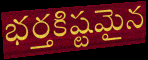
భర్తకిష్టమైన